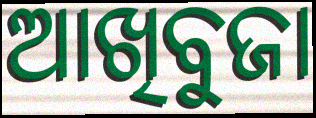
ଆଖିବୁଜା